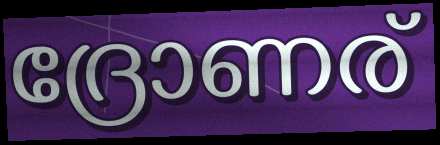
ദ്രോണര്